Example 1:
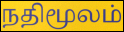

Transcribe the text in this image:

நதிமூலம்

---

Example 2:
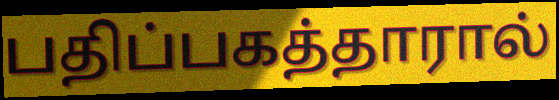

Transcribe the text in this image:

பதிப்பகத்தாரால்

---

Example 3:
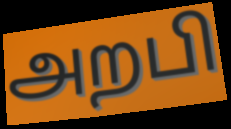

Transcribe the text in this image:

அறபி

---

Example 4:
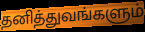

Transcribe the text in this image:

தனித்துவங்களும்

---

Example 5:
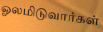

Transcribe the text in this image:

ஓலமிடுவார்கள்